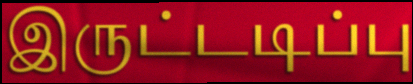
இருட்டடிப்பு